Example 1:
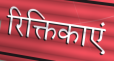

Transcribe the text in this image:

रिक्तिकाएं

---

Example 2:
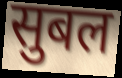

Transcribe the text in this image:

सुबल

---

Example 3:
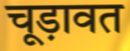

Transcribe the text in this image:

चूड़ावत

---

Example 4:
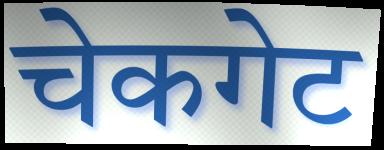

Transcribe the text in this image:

चेकगेट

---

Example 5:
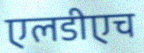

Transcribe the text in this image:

एलडीएच